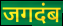
जगदंब